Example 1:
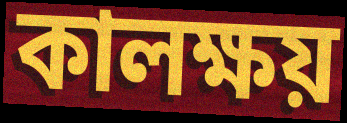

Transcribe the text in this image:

কালক্ষয়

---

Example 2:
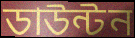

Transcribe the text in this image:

ডাউন্টন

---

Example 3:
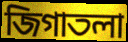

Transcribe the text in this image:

জিগাতলা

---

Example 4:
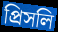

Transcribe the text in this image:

প্রিসলি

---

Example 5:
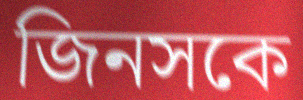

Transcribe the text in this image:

জিনসকে